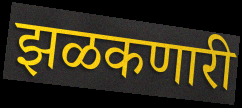
झळकणारी